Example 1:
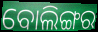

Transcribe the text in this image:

ବୋଲିଙ୍ଗର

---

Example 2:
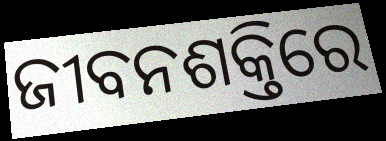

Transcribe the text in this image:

ଜୀବନଶକ୍ତିରେ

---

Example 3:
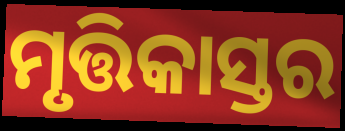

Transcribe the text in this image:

ମୃତ୍ତିକାସ୍ତର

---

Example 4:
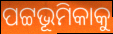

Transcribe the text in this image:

ପଟ୍ଟଭୂମିକାକୁ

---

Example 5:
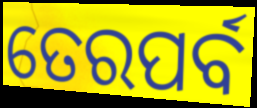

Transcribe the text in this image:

ତେରପର୍ବ